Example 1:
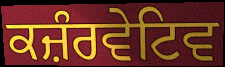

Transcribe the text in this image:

ਕਜ਼ੰਰਵੇਟਿਵ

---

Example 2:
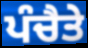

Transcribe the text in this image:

ਪੰਚੈਤੇ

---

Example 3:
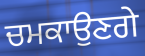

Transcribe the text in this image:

ਚਮਕਾਉਣਗੇ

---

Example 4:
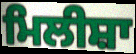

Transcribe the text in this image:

ਮਿਲੀਸ਼ਾ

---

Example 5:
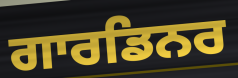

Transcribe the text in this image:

ਗਾਰਡਿਨਰ